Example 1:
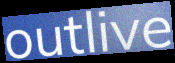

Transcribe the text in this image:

outlive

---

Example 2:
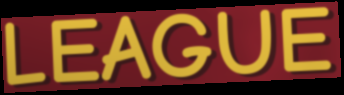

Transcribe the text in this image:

LEAGUE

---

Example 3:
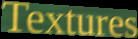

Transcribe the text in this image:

Textures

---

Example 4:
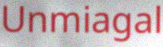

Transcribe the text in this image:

Unmiagal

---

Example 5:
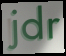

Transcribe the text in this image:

jdr